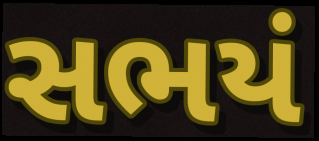
સભયં